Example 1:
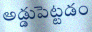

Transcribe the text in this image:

అడ్డుపెట్టడం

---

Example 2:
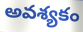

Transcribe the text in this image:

అవశ్యకం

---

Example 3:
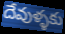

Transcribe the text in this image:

దేవుళ్ళకు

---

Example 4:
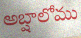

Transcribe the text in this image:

అబ్షాలోము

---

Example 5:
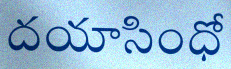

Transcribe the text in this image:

దయాసింధో